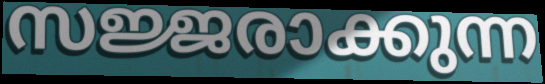
സജ്ജരാക്കുന്ന